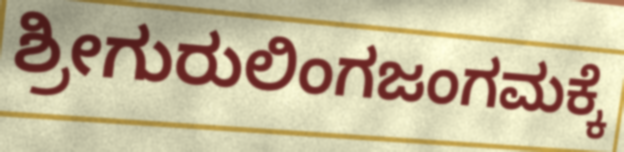
ಶ್ರೀಗುರುಲಿಂಗಜಂಗಮಕ್ಕೆ